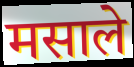
मसाले